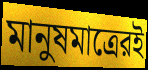
মানুষমাত্রেরই